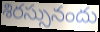
శిరస్సునందు